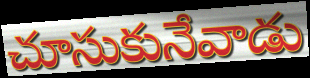
చూసుకునేవాడు